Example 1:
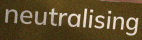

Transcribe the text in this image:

neutralising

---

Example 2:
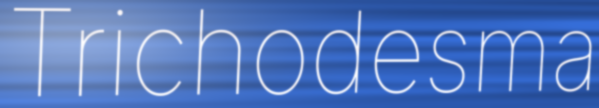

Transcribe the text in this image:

Trichodesma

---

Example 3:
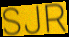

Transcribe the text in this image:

SJR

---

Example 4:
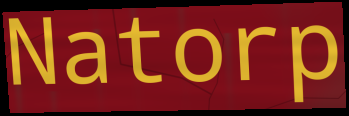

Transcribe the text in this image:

Natorp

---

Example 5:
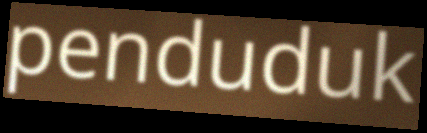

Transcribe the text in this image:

penduduk